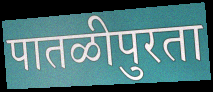
पातळीपुरता